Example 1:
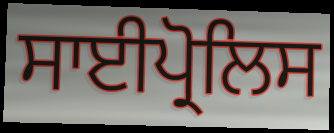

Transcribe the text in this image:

ਸਾਈਪ੍ਰੋਲਿਸ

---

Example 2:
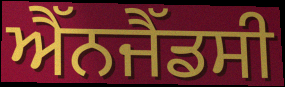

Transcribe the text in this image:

ਐੱਨਜੈੱਡਸੀ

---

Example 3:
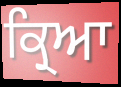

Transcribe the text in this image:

ਕ੍ਰਿਆ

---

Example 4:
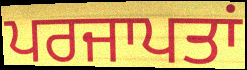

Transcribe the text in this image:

ਪਰਜਾਪਤਾਂ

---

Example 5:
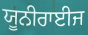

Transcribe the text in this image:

ਯੂਨੀਰਾਈਜ